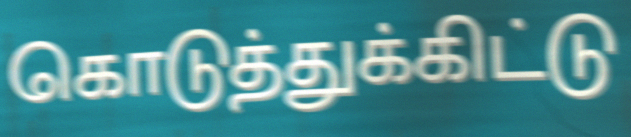
கொடுத்துக்கிட்டு